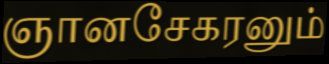
ஞானசேகரனும்